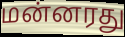
மன்னரது